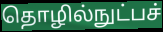
தொழில்நுட்பச்